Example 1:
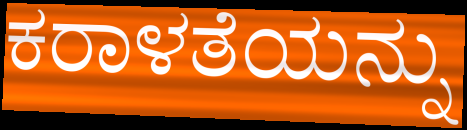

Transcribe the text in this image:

ಕರಾಳತೆಯನ್ನು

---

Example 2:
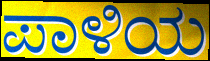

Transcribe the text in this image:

ಪಾಳಿಯ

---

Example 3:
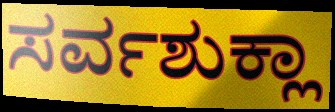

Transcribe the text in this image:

ಸರ್ವಶುಕ್ಲಾ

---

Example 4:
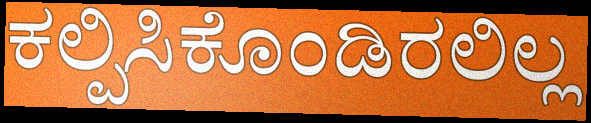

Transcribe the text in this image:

ಕಲ್ಪಿಸಿಕೊಂಡಿರಲಿಲ್ಲ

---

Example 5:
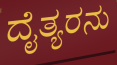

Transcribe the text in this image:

ದೈತ್ಯರನು